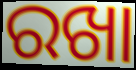
ରଖା